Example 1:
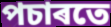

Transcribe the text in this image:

পচাৰতে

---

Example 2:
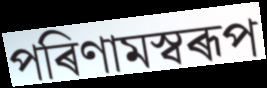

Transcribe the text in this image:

পৰিণামস্বৰূপ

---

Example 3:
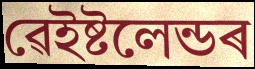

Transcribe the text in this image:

ৱেইষ্টলেন্ডৰ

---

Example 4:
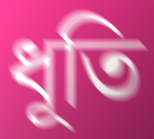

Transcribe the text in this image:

ধূতি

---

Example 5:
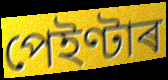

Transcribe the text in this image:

পেইণ্টাৰ